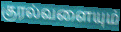
குரல்வளையும்